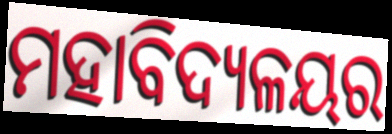
ମହାବିଦ୍ୟଳୟର